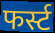
फर्स्ट